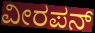
ವೀರಪನ್